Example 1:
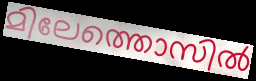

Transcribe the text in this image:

മിലേത്തൊസിൽ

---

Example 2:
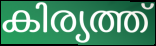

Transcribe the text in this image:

കിര്യത്ത്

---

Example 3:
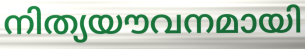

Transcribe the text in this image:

നിത്യയൗവനമായി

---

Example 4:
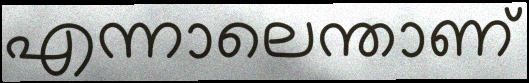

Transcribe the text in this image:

എന്നാലെന്താണ്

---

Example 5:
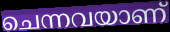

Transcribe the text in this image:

ചെന്നവയാണ്